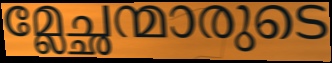
മ്ലേച്ഛന്മാരുടെ